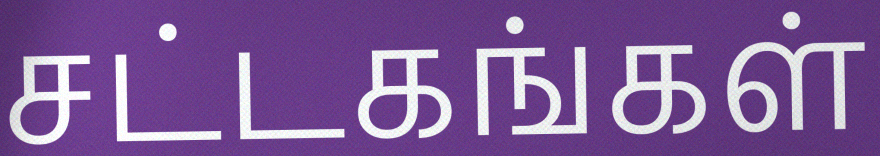
சட்டகங்கள்